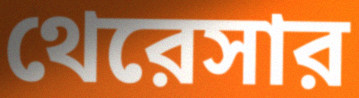
থেরেসার